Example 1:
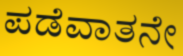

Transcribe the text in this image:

ಪಡೆವಾತನೇ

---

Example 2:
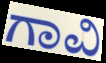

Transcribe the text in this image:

ಗಾವಿ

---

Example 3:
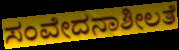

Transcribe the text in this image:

ಸಂವೇದನಾಶೀಲತೆ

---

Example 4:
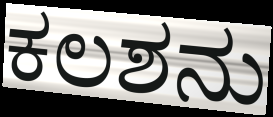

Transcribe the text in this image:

ಕಲಶನು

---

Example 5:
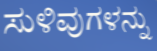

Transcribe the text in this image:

ಸುಳಿವುಗಳನ್ನು